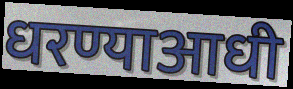
धरण्याआधी